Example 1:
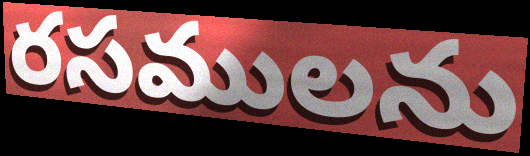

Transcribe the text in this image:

రసములను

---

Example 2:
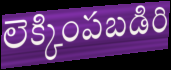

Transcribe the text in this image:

లెక్కింపబడిరి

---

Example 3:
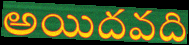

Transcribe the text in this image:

అయిదవది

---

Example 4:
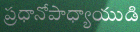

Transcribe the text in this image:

ప్రధానోపాధ్యాయుడి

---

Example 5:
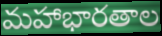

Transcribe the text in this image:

మహాభారతాల